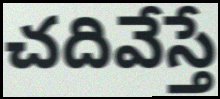
చదివేస్తే